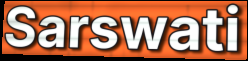
Sarswati